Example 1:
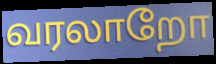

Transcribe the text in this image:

வரலாறோ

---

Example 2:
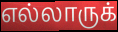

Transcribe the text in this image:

எல்லாருக்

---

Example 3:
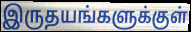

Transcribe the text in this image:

இருதயங்களுக்குள்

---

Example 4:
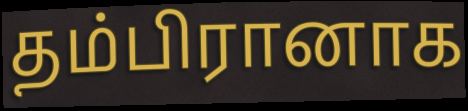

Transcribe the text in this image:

தம்பிரானாக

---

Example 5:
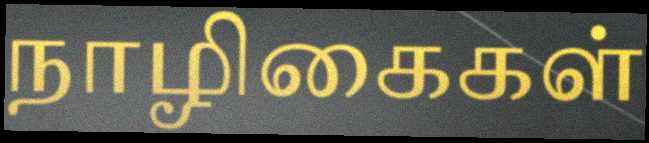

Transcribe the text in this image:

நாழிகைகள்